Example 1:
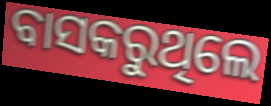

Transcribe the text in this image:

ବାସକରୁଥିଲେ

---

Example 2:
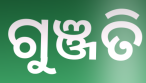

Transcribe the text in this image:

ଗୁଞ୍ଜତି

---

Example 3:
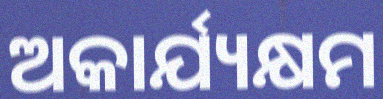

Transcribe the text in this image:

ଅକାର୍ଯ୍ୟକ୍ଷମ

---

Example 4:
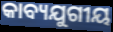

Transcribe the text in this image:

କାବ୍ୟଯୁଗୀୟ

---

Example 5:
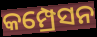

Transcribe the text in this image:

କମ୍ପ୍ରେସନ